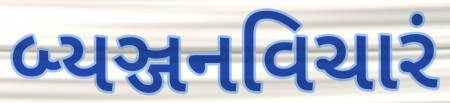
બ્યઞ્જનવિચારં